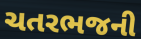
ચતરભજની